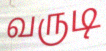
வருடி